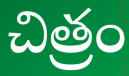
చిత్రం